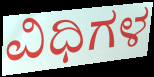
ವಿಧಿಗಳ